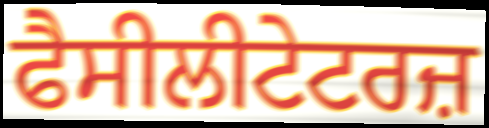
ਫੈਸੀਲੀਟੇਟਰਜ਼